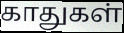
காதுகள்